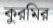
কুরমির